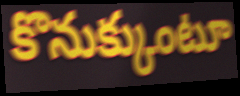
కొనుక్కుంటూ